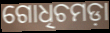
ଗୋଧିଚମଡ଼ା